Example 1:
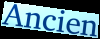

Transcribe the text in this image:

Ancien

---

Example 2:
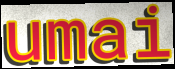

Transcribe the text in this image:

umai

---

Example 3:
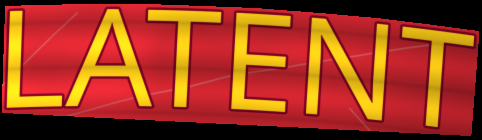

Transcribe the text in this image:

LATENT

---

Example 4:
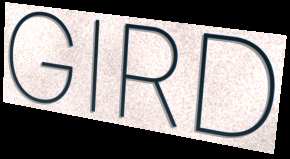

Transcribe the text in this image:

GIRD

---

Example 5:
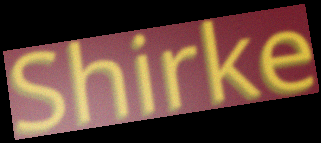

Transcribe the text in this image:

Shirke